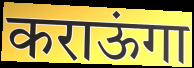
कराऊंगा